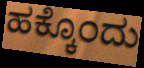
ಹಕ್ಕೊಂದು